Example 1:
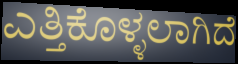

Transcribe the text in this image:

ಎತ್ತಿಕೊಳ್ಳಲಾಗಿದೆ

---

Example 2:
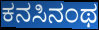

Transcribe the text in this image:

ಕನಸಿನಂಥ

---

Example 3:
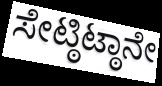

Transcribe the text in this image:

ಸೇಟ್ಠಿಟ್ಠಾನೇ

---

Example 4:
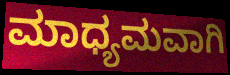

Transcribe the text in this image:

ಮಾಧ್ಯಮವಾಗಿ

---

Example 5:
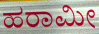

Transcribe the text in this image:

ಹರಾಮೀ